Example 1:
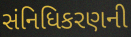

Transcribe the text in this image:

સંનિધિકરણની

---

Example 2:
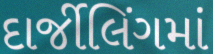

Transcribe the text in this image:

દાર્જીલિંગમાં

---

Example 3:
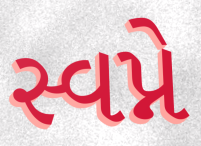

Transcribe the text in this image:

સ્વપ્ને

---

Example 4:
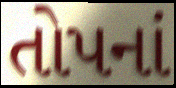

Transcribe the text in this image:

તોપનાં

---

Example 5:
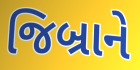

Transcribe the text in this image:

જિબ્રાને